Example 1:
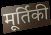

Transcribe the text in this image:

मूर्तिकी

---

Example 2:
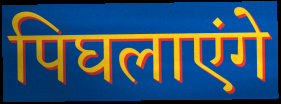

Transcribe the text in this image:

पिघलाएंगे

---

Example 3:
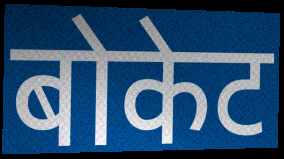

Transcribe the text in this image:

बोकेट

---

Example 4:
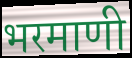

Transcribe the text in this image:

भरमाणी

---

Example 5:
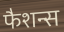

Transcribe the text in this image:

फैशन्स